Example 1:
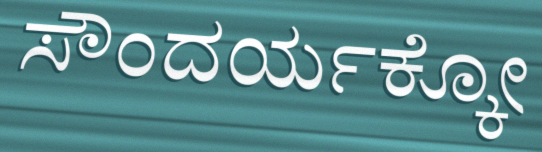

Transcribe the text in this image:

ಸೌಂದರ್ಯಕ್ಕೋ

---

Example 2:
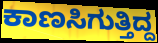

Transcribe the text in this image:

ಕಾಣಸಿಗುತ್ತಿದ್ದ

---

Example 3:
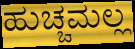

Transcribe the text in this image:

ಹುಚ್ಚಮಲ್ಲ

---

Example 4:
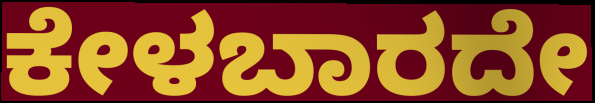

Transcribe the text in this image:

ಕೇಳಬಾರದೇ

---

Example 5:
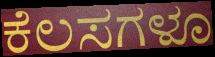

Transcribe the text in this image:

ಕೆಲಸಗಳೂ